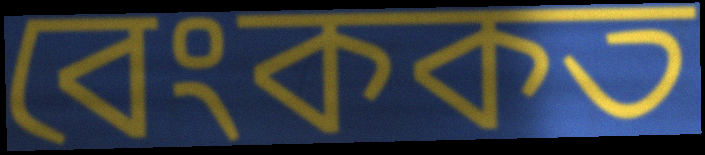
বেংককত